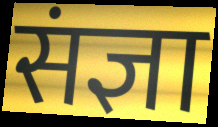
संज्ञा